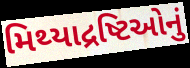
મિથ્યાદ્રષ્ટિઓનું